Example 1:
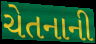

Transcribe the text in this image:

ચેતનાની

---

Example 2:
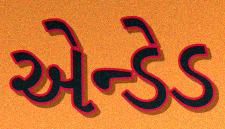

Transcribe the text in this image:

એન્ડેડ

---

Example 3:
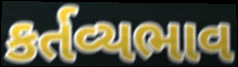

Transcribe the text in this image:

કર્તવ્યભાવ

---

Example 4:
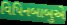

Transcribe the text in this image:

વિપિનબાબુએ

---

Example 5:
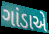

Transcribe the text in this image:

ગાંડાએ